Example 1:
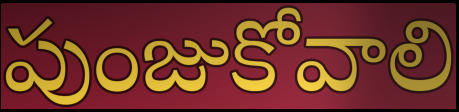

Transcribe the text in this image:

పుంజుకోవాలి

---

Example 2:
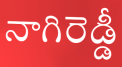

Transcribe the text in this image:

నాగిరెడ్డీ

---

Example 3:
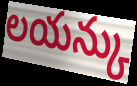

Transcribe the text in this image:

లయన్కు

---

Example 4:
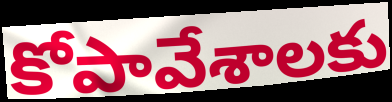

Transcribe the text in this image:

కోపావేశాలకు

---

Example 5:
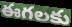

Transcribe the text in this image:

ఈగలకు